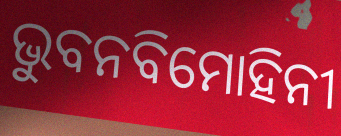
ଭୁବନବିମୋହିନୀ